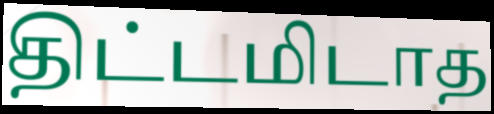
திட்டமிடாத